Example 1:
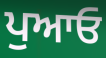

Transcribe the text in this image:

ਪੁਆਓ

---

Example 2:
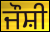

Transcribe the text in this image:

ਜੌਸ਼ੀ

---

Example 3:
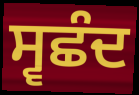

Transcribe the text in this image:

ਸ੍ਵਛੰਦ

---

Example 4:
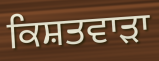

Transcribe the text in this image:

ਕਿਸ਼ਤਵਾੜਾ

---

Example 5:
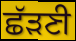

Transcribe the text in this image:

ਛੱੜਣੀ